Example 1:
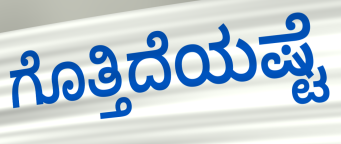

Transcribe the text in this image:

ಗೊತ್ತಿದೆಯಷ್ಟೆ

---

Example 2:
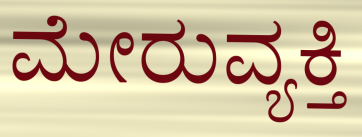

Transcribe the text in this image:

ಮೇರುವ್ಯಕ್ತಿ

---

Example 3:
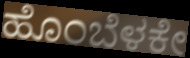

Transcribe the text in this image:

ಹೊಂಬೆಳಕೇ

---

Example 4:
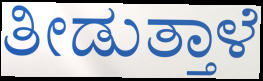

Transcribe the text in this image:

ತೀಡುತ್ತಾಳೆ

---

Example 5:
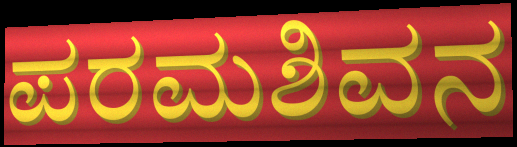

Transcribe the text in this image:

ಪರಮಶಿವನ